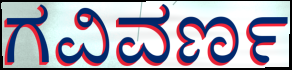
ಗವಿವರ್ಣ